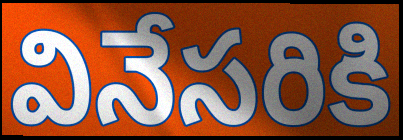
వినేసరికి